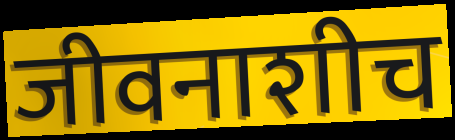
जीवनाशीच